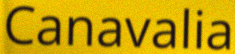
Canavalia